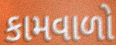
કામવાળો